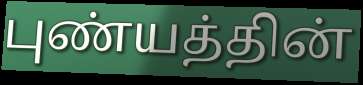
புண்யத்தின்